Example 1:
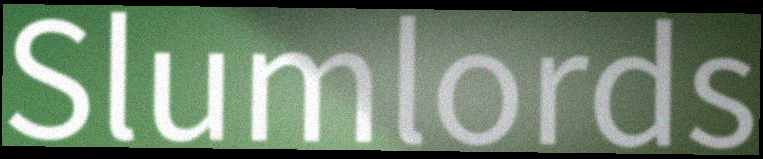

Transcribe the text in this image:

Slumlords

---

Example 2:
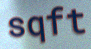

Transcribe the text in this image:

sqft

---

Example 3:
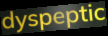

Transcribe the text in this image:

dyspeptic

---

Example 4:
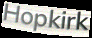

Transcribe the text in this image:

Hopkirk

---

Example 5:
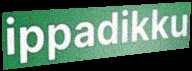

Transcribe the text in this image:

ippadikku